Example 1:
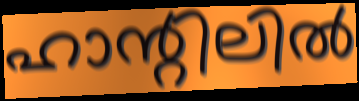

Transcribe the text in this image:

ഹാന്റിലിൽ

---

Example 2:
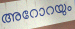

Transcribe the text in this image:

അറോറയും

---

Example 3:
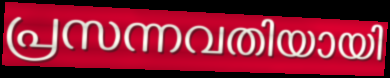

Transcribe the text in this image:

പ്രസന്നവതിയായി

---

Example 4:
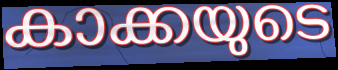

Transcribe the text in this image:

കാക്കയുടെ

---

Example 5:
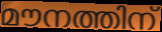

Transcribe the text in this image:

മൗനത്തിന്